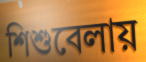
শিশুবেলায়